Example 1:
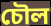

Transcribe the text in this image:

চৌল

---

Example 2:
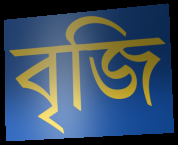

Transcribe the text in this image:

বৃজি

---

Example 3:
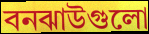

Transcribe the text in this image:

বনঝাউগুলো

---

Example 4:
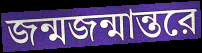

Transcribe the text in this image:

জন্মজন্মান্তরে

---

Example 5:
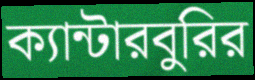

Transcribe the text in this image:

ক্যান্টারবুরির